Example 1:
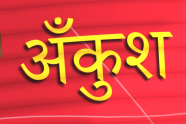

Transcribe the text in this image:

अँकुश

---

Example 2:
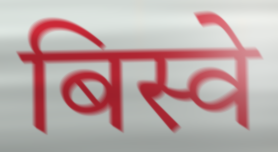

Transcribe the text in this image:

बिस्वे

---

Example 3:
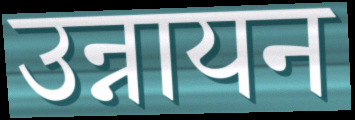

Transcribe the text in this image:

उन्नायन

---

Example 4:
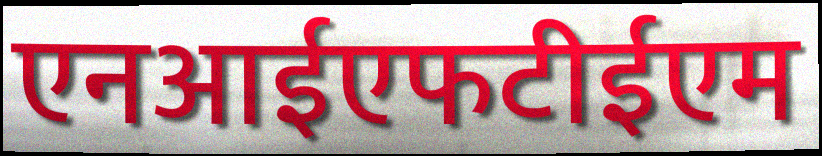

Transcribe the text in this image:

एनआईएफटीईएम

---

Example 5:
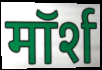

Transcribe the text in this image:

मॉर्श